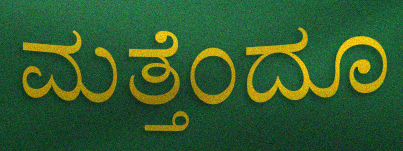
ಮತ್ತೆಂದೂ